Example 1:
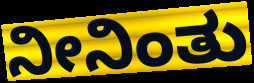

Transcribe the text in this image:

ನೀನಿಂತು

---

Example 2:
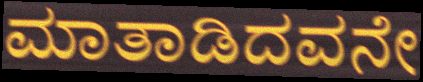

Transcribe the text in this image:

ಮಾತಾಡಿದವನೇ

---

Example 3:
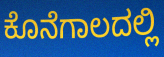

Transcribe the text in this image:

ಕೊನೆಗಾಲದಲ್ಲಿ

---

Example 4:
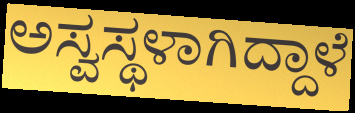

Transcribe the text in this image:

ಅಸ್ವಸ್ಥಳಾಗಿದ್ದಾಳೆ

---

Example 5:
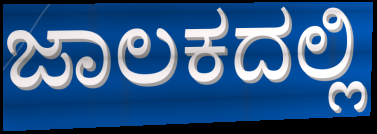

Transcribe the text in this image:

ಜಾಲಕದಲ್ಲಿ